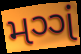
મગ્ગં